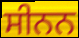
ਸੀਨਨ